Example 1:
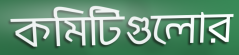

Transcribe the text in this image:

কমিটিগুলোর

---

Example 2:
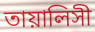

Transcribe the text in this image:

তায়ালিসী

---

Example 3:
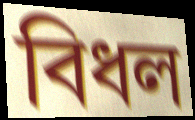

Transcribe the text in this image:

বিধল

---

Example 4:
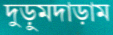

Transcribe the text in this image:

দুড়ুমদাড়াম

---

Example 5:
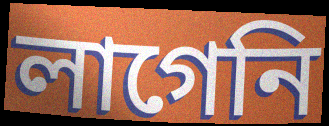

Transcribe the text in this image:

লাগেনি